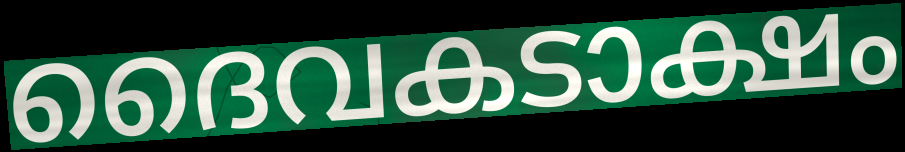
ദൈവകടാക്ഷം